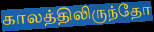
காலத்திலிருந்தோ